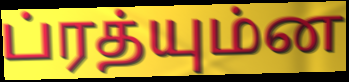
ப்ரத்யும்ன